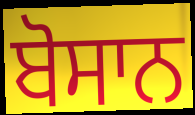
ਬੋਸਾਨ